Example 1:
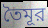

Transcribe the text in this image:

তৈমূর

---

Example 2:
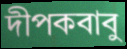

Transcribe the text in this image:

দীপকবাবু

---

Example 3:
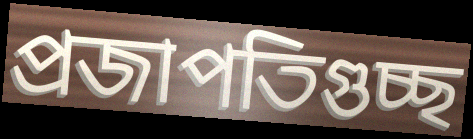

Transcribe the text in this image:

প্রজাপতিগুচ্ছ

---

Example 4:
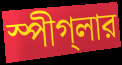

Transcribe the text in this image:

স্পীগ্‌লার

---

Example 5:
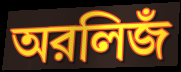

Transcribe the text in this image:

অরলিজঁ